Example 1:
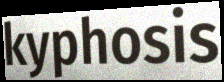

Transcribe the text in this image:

kyphosis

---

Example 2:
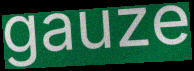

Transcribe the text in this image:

gauze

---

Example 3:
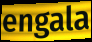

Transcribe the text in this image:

engala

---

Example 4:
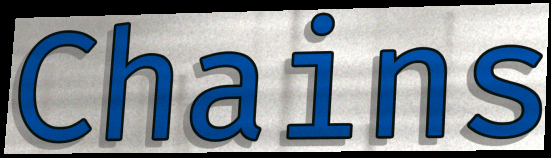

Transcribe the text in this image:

Chains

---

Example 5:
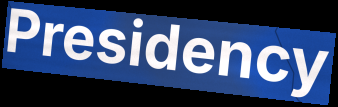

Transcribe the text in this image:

Presidency